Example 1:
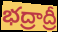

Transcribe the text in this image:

భద్రాద్రీ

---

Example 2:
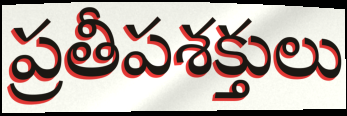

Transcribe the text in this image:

ప్రతీపశక్తులు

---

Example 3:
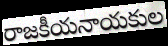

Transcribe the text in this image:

రాజకీయనాయకుల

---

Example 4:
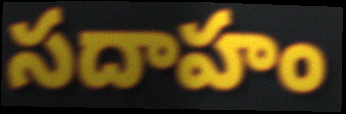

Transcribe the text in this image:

సదాహం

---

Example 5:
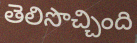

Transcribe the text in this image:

తెలిసొచ్చింది